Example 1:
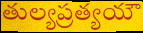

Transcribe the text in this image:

తుల్యప్రత్యయౌ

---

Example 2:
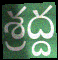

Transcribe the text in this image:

శ్రద్ద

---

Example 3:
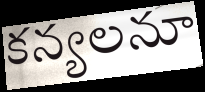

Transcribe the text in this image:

కన్యలనూ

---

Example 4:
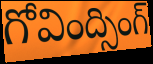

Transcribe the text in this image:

గోవింద్సింగ్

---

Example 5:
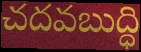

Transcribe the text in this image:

చదవబుద్ధి